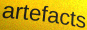
artefacts